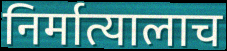
निर्मात्यालाच